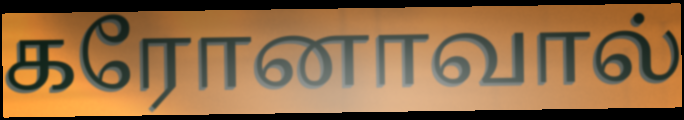
கரோனாவால்